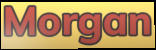
Morgan